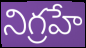
నిగ్రహే